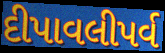
દીપાવલીપર્વ